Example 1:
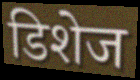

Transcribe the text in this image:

डिशेज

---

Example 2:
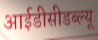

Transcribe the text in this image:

आईडीसीडब्ल्यू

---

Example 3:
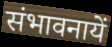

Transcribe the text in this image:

संभावनायें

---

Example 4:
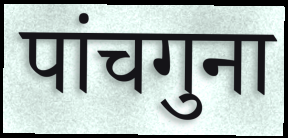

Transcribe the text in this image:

पांचगुना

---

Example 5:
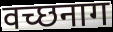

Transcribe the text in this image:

वच्छनाग